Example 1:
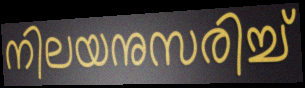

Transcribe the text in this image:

നിലയനുസരിച്ച്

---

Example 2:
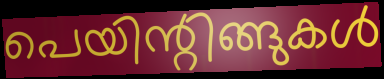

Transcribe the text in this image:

പെയിന്റിങ്ങുകൾ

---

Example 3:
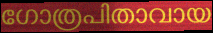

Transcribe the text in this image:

ഗോത്രപിതാവായ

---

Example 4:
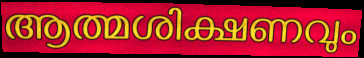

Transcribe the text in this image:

ആത്മശിക്ഷണവും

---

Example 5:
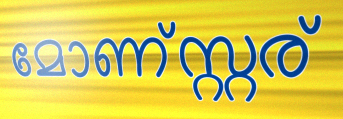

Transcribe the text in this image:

മോണ്സ്റ്റര്